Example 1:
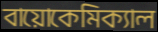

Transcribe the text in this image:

বায়োকেমিক্যাল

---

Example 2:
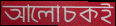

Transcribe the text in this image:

আলোচকই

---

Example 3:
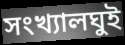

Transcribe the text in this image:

সংখ্যালঘুই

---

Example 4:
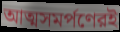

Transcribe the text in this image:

আত্মসমর্পণেরই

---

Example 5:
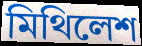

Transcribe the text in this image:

মিথিলেশ